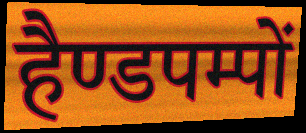
हैण्डपम्पों